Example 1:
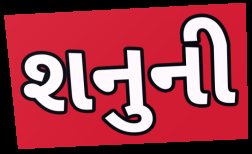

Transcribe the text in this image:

શનુની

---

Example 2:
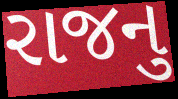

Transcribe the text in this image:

રાજનુ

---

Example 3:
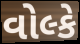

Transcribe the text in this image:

વોલ્કે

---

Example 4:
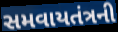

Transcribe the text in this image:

સમવાયતંત્રની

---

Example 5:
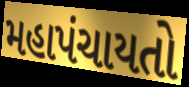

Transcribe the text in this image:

મહાપંચાયતો